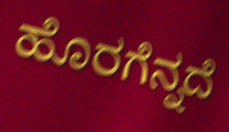
ಹೊರಗೆನ್ನದೆ